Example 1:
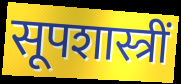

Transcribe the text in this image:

सूपशास्त्रीं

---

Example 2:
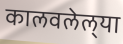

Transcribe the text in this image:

कालवलेल्या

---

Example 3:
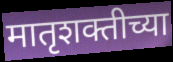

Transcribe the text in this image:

मातृशक्तीच्या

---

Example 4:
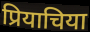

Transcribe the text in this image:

प्रियाचिया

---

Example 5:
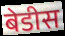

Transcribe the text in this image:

बेडीस